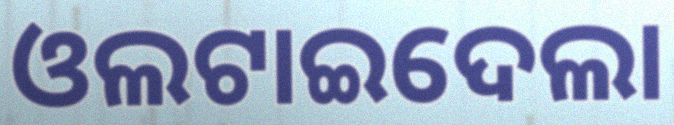
ଓଲଟାଇଦେଲା